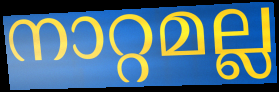
നാറ്റമല്ല